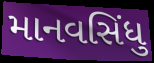
માનવસિંધુ